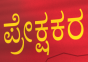
ಪ್ರೇಕ್ಷಕರ